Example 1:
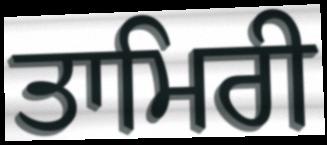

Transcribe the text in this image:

ਤਾਮਿਰੀ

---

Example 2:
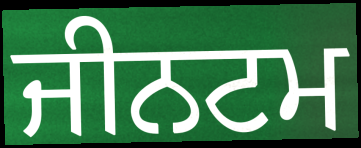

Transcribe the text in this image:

ਜੀਨਟਮ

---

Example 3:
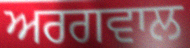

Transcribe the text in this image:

ਅਰਗਵਾਲ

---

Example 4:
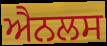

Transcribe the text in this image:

ਐਨਲਸ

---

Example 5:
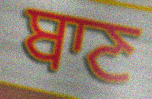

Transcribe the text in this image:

ਬਾਣ